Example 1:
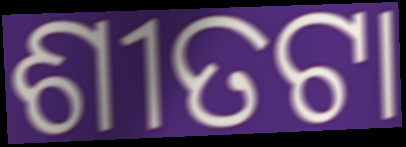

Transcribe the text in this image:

ଶୀତଟା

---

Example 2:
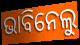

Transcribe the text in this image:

ଭାବିନେଲୁ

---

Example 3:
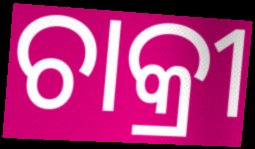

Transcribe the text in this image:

ଚାକ୍ରୀ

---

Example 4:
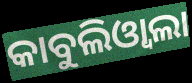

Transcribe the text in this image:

କାବୁଲିଓ୍ୱାଲା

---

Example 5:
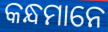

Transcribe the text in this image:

କନ୍ଧମାନେ